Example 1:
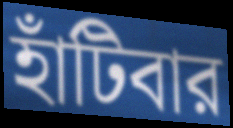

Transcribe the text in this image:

হাঁটিবার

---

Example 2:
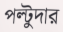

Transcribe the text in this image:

পল্টুদার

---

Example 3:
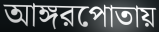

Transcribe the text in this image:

আঙ্গরপোতায়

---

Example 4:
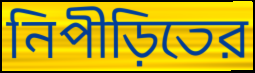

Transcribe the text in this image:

নিপীড়িতের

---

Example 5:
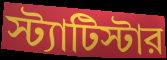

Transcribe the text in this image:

স্ট্যাটিস্টার